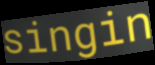
singin